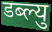
डब्ल्यु